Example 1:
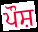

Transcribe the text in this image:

ਪੌਸ਼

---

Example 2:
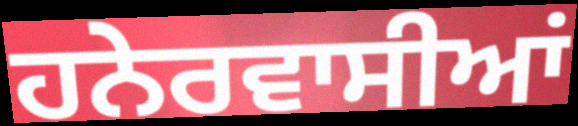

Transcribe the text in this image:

ਹਨੇਰਵਾਸੀਆਂ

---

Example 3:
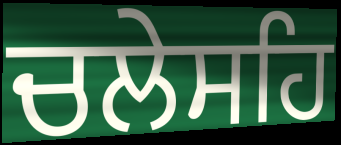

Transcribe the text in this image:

ਚਲੇਸਹਿ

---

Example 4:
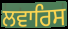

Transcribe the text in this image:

ਲਵਾਰਿਸ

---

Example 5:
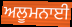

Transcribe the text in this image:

ਅਲੂਮਨਾਈ